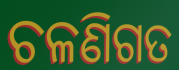
ଚଳଣିଗତ